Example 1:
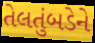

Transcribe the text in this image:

તેલતુંબડેને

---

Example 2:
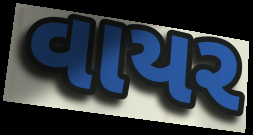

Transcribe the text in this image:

વાયર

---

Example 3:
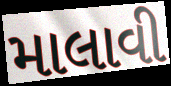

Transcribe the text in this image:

માલાવી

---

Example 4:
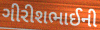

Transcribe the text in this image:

ગીરીશભાઈની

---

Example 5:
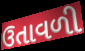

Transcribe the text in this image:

ઉતાવળી